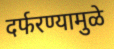
दर्फरण्यामुळे